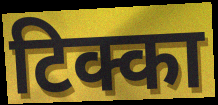
टिक्का